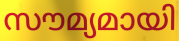
സൗമ്യമായി